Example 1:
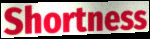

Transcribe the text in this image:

Shortness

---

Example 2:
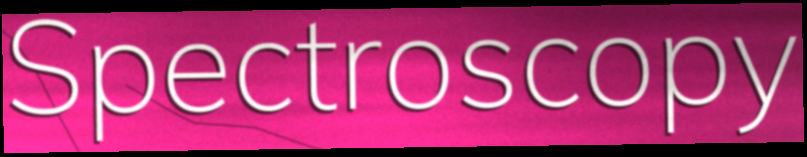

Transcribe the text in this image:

Spectroscopy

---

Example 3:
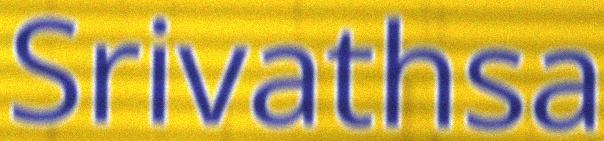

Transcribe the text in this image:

Srivathsa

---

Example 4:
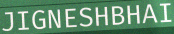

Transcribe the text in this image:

JIGNESHBHAI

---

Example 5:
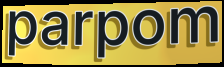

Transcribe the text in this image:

parpom